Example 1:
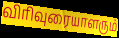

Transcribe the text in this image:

விரிவுரையாளரும்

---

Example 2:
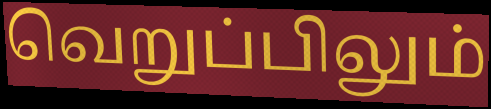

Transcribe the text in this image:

வெறுப்பிலும்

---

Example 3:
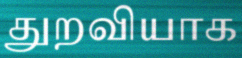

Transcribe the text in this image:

துறவியாக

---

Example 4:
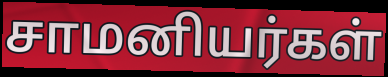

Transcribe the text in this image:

சாமனியர்கள்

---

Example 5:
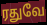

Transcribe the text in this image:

ரதுவே